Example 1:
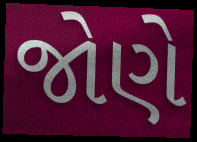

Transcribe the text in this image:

જોણે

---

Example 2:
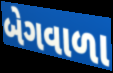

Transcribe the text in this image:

બેગવાળા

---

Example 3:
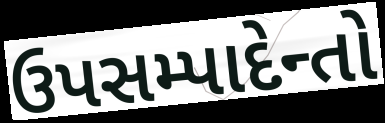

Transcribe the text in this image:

ઉપસમ્પાદેન્તો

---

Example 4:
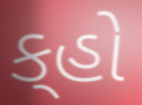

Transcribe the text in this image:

ક્‌હો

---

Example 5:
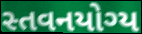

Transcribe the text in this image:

સ્તવનયોગ્ય